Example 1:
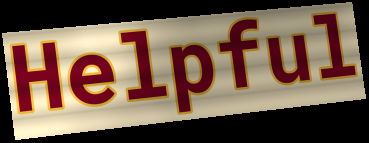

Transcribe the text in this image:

Helpful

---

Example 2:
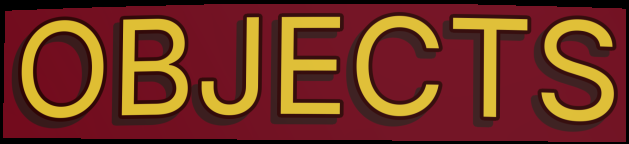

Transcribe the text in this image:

OBJECTS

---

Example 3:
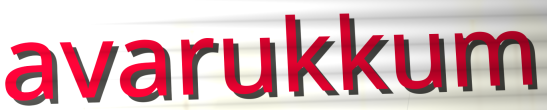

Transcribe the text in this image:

avarukkum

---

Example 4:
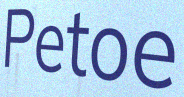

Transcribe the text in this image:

Petoe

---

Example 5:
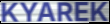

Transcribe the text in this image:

KYAREK